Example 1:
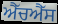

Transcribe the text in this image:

ਐੱਚਐੱਸ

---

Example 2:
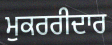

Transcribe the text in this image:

ਮੁਕਰਰੀਦਾਰ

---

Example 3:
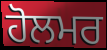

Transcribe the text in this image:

ਹੋਲਮਰ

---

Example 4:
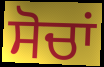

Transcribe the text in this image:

ਸੋਚਾਂ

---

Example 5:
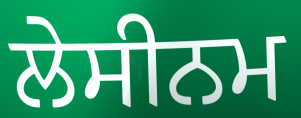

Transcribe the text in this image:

ਲੇਸੀਨਮ